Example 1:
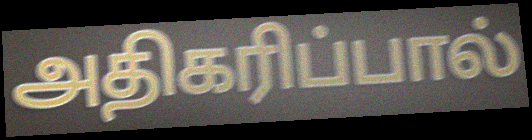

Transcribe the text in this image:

அதிகரிப்பால்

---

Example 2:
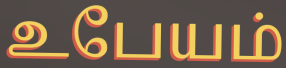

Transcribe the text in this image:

உபேயம்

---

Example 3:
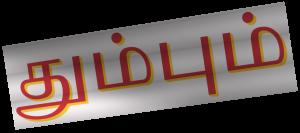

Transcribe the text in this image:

தும்பும்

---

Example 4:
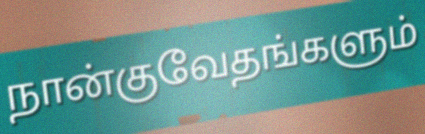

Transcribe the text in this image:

நான்குவேதங்களும்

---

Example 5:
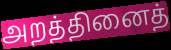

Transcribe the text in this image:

அறத்தினைத்